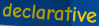
declarative